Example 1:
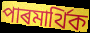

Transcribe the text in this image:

পাৰমাৰ্থিক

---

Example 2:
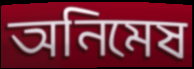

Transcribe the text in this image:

অনিমেষ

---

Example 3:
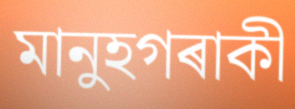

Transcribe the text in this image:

মানুহগৰাকী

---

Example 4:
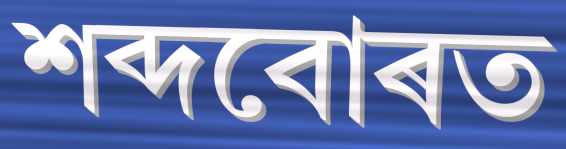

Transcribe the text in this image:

শব্দবোৰত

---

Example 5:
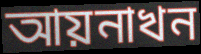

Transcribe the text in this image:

আয়নাখন